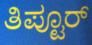
ತಿಪ್ಟೂರ್